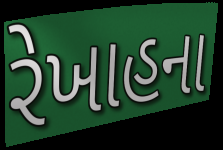
રેખાહના